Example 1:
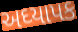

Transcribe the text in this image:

અઘ્યાપક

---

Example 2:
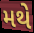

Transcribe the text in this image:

મથે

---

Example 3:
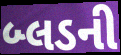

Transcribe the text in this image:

બ્લડની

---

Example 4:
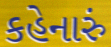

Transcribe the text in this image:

કહેનારું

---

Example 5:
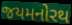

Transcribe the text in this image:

જયમનોરથ